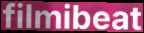
filmibeat